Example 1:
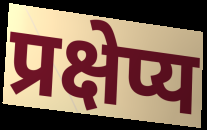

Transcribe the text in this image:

प्रक्षेप्य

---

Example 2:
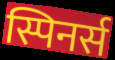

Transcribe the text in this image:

स्पिनर्स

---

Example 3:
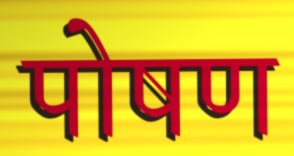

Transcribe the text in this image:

पोषण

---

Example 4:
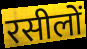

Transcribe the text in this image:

रसीलों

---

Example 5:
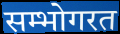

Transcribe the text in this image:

सम्भोगरत